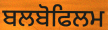
ਬਲਬੋਫਿਲਮ